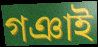
গঞাই